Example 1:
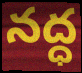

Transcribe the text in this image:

నద్ధ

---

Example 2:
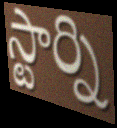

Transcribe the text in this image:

స్టార్ని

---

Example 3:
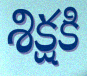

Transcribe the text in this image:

శిక్షకి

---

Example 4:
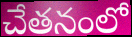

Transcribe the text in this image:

చేతనంలో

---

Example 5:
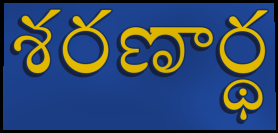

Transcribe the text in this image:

శరణార్థ